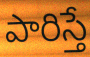
పారిస్తే